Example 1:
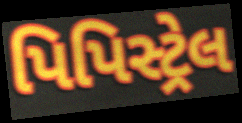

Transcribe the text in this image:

પિપિસ્ટ્રેલ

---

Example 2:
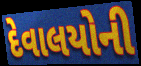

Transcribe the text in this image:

દેવાલયોની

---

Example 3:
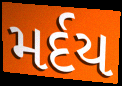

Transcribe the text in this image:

મર્દય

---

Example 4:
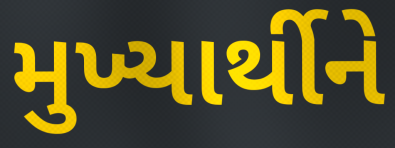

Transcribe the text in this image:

મુખ્યાર્થીને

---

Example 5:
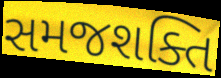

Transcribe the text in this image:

સમજશક્તિ